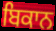
ਬਿਕਾਨ